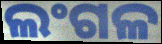
ଲଂଗଳ